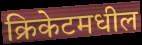
क्रिकेटमधील